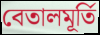
বেতালমূর্তি